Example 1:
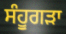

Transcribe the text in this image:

ਸੰਹੂਗੜਾ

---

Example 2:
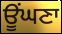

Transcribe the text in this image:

ਊਂਘਣਾ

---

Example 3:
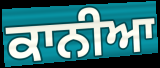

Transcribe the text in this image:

ਕਾਨੀਆ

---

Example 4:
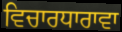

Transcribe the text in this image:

ਵਿਚਾਰਧਾਰਾਵਾ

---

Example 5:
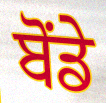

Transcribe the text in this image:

ਬੋਂਡੇ